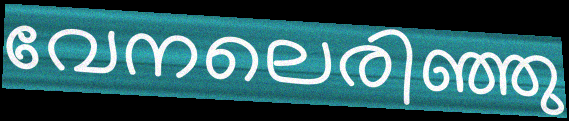
വേനലെരിഞ്ഞു